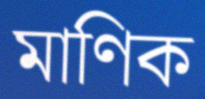
মাণিক